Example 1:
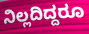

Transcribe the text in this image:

ನಿಲ್ಲದಿದ್ದರೂ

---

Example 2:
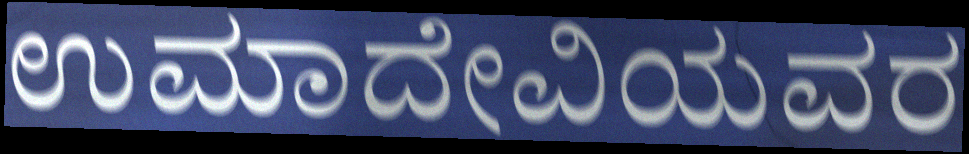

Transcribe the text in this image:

ಉಮಾದೇವಿಯವರ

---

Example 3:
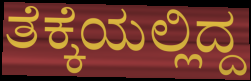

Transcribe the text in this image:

ತೆಕ್ಕೆಯಲ್ಲಿದ್ದ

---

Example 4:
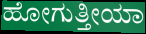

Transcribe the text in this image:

ಹೋಗುತ್ತೀಯಾ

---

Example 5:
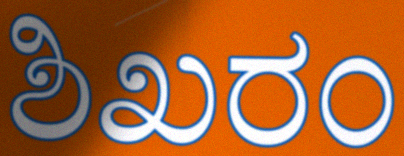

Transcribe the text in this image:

ಶಿಖರಂ